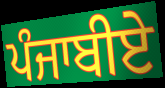
ਪੰਜਾਬੀਏ